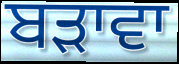
ਬੜਾਵਾ